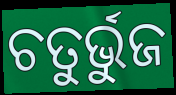
ଚତୁର୍ଭୁଜ